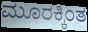
ಮೂರಕ್ಕಿಂತ